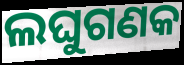
ଲଘୁଗଣକ